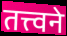
तत्त्वने